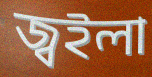
জ্বইলা